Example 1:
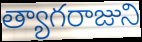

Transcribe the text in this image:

త్యాగరాజుని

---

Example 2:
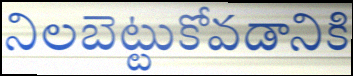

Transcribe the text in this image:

నిలబెట్టుకోవడానికి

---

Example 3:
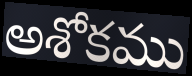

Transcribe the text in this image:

అశోకము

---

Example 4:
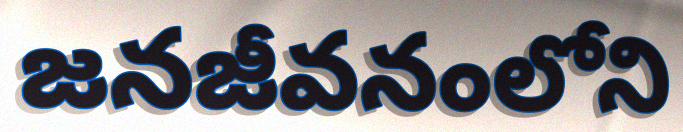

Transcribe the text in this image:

జనజీవనంలోని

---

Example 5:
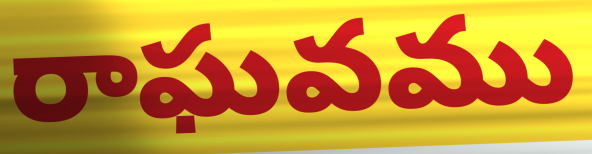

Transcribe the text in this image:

రాఘవము